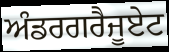
ਅੰਡਰਗਰੈਜੂਏਟ